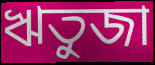
ঋতুজা